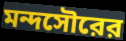
মন্দসৌরের